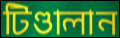
টিণ্ডালান